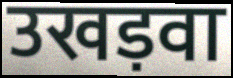
उखड़वा